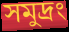
সমুদ্রং